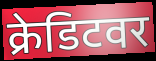
क्रेडिटवर